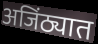
अजिंठ्यात